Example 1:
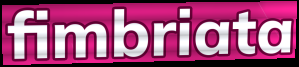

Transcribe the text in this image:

fimbriata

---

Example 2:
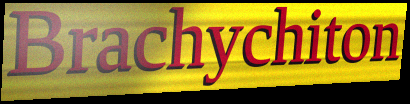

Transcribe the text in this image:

Brachychiton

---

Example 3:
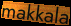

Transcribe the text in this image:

makkala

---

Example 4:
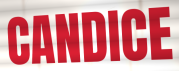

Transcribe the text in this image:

CANDICE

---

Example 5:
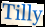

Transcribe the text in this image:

Tilly